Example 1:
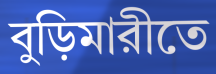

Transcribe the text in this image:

বুড়িমারীতে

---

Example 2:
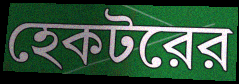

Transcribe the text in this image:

হেকটরের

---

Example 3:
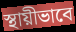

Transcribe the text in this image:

স্থায়ীভাবে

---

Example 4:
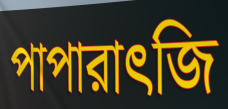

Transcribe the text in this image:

পাপারাৎজি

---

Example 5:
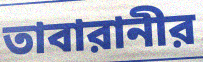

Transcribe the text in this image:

তাবারানীর